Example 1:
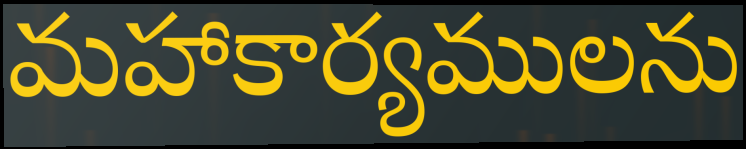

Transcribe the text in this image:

మహాకార్యములను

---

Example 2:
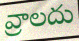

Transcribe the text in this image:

వ్రాలదు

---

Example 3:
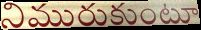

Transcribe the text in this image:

నిమురుకుంటూ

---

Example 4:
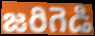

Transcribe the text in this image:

జరిగెడి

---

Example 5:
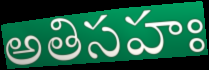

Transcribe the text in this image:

అతిసహః